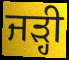
ਜੜ੍ਹੀ